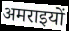
अमराइयों